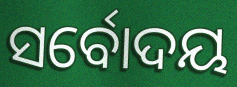
ସର୍ବୋଦୟ